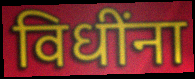
विधींना